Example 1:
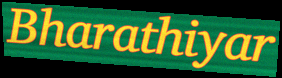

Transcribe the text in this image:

Bharathiyar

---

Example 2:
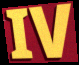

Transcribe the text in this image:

IV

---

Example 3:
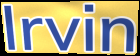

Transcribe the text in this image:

Irvin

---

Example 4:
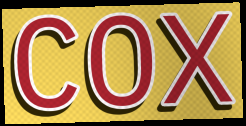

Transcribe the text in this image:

COX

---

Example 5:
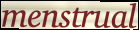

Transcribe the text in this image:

menstrual